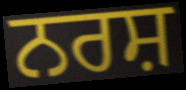
ਨਰਸ਼